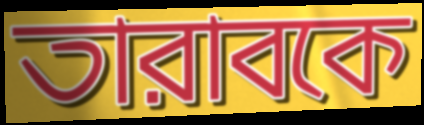
তারাবকে